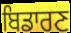
ਬਿਡਾਰਣ